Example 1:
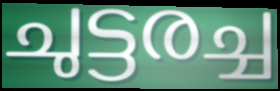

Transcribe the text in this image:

ചുട്ടരച്ച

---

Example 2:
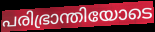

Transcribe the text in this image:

പരിഭ്രാന്തിയോടെ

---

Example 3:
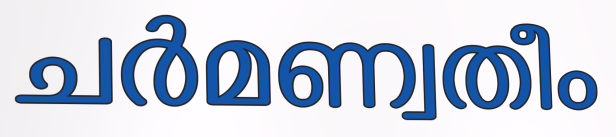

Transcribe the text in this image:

ചർമണ്വതീം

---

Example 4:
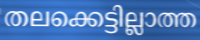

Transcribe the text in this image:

തലക്കെട്ടില്ലാത്ത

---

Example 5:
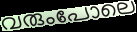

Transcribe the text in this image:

വരുംപോലെ